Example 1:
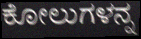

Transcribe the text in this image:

ಕೋಲುಗಳನ್ನ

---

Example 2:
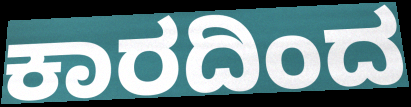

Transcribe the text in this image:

ಕಾರದಿಂದ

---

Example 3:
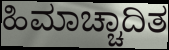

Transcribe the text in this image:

ಹಿಮಾಚ್ಚಾದಿತ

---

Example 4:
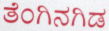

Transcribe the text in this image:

ತೆಂಗಿನಗಿಡ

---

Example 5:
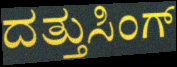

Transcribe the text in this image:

ದತ್ತುಸಿಂಗ್